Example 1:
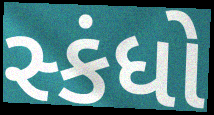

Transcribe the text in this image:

સ્કંધો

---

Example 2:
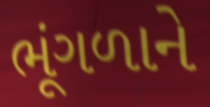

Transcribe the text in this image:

ભૂંગળાને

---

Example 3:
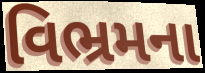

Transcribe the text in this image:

વિભ્રમના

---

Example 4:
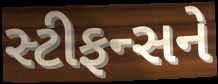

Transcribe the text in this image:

સ્ટીફન્સને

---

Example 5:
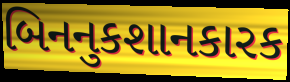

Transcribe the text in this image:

બિનનુકશાનકારક